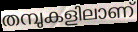
തമ്പുകളിലാണ്